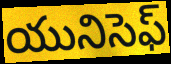
యునిసెఫ్